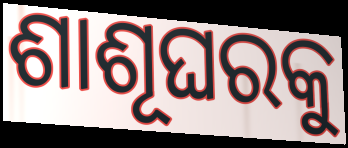
ଶାଶୂଘରକୁ